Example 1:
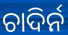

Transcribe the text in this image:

ଚାଦିର୍ନ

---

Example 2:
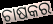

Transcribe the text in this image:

ଚାଷକର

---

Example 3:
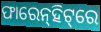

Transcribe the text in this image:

ଫାରେନ୍‌ହିଟ୍‌ରେ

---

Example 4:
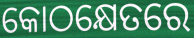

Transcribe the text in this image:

କୋଠକ୍ଷେତରେ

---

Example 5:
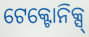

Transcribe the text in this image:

ଟେକ୍ଟୋନିକ୍ସ୍